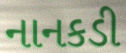
નાનકડી